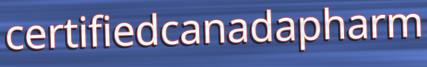
certifiedcanadapharm